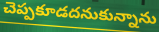
చెప్పకూడదనుకున్నాను